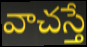
వాచస్తే